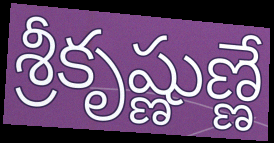
శ్రీకృష్ణుణ్ణే